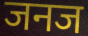
जनज